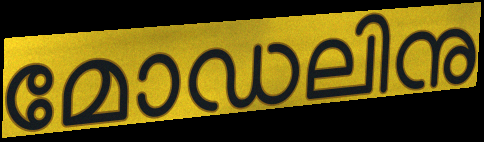
മോഡലിനു